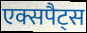
एक्सपैट्स